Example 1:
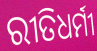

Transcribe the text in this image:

ରୀତିଧର୍ମୀ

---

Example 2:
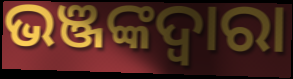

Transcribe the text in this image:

ଭଞ୍ଜଙ୍କଦ୍ୱାରା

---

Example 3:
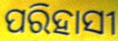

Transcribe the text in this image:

ପରିହାସୀ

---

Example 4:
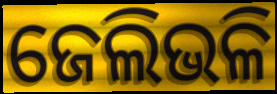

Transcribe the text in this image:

ଜେଲିଭଳି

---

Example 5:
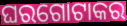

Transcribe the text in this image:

ଘରଗୋଟାକର